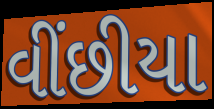
વીંછીયા